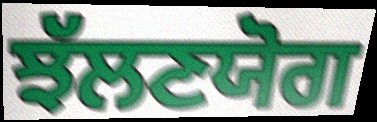
ਝੱਲਣਯੋਗ